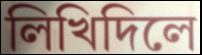
লিখিদিলে